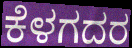
ಕೆಳಗದರ